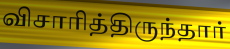
விசாரித்திருந்தார்